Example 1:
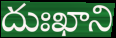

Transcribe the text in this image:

దుఃఖాని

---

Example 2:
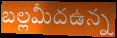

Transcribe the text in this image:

బల్లమీదఉన్న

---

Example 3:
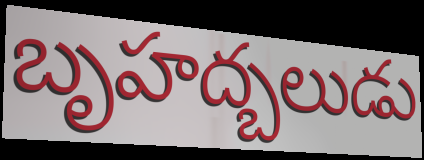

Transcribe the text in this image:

బృహద్బలుడు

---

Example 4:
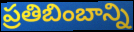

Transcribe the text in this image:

ప్రతిబింబాన్ని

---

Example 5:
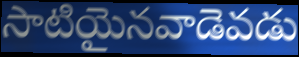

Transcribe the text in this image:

సాటియైనవాడెవడు